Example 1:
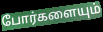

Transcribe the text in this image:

போர்களையும்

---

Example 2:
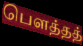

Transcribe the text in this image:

பௌத்தத்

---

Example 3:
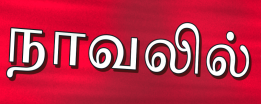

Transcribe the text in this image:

நாவலில்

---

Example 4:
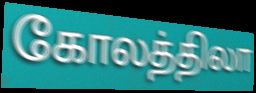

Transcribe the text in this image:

கோலத்திலா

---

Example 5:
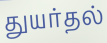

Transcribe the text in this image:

துயர்தல்